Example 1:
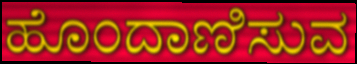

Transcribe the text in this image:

ಹೊಂದಾಣಿಸುವ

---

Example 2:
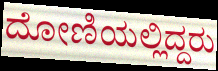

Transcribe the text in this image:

ದೋಣಿಯಲ್ಲಿದ್ದರು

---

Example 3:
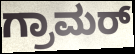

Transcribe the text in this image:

ಗ್ರಾಮರ್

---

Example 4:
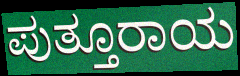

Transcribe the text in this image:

ಪುತ್ತೂರಾಯ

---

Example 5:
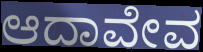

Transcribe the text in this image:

ಆದಾವೇವ